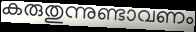
കരുതുന്നുണ്ടാവണം